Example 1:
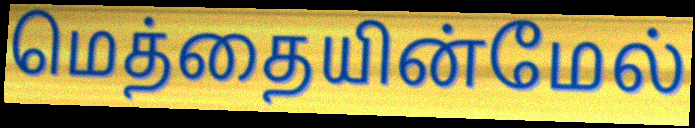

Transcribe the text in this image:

மெத்தையின்மேல்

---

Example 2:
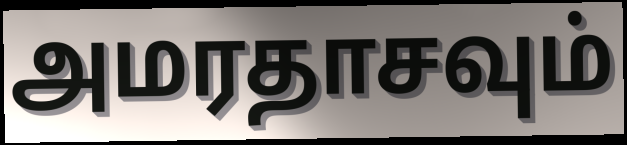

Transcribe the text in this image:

அமரதாசவும்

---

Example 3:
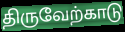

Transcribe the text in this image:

திருவேற்காடு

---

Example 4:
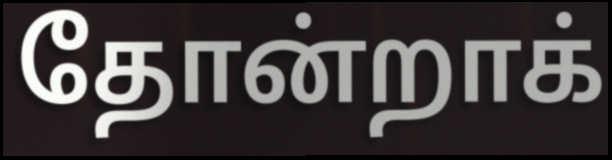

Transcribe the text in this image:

தோன்றாக்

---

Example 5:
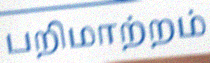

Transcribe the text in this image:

பறிமாற்றம்